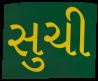
સુચી